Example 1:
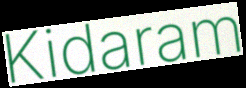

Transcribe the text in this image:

Kidaram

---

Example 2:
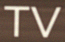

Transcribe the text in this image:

TV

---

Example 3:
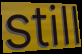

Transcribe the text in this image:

still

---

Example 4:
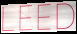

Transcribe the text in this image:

LEED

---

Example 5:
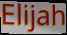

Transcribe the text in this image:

Elijah